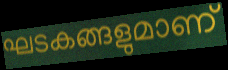
ഘടകങ്ങളുമാണ്